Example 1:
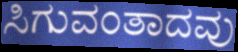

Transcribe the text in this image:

ಸಿಗುವಂತಾದವು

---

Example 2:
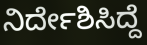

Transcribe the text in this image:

ನಿರ್ದೇಶಿಸಿದ್ದೆ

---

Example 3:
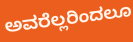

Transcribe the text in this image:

ಅವರೆಲ್ಲರಿಂದಲೂ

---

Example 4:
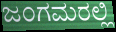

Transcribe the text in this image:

ಜಂಗಮರಲ್ಲಿ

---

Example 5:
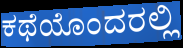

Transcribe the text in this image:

ಕಥೆಯೊಂದರಲ್ಲಿ